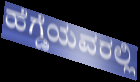
ಹೆಗ್ಡೆಯವರಲ್ಲಿ